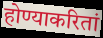
होण्याकरितां